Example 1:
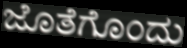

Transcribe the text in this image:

ಜೊತೆಗೊಂದು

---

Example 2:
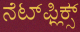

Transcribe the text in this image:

ನೆಟ್‌ಫ್ಲಿಕ್ಸ್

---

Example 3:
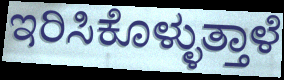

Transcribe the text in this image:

ಇರಿಸಿಕೊಳ್ಳುತ್ತಾಳೆ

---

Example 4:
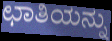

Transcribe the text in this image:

ಛಾತಿಯನ್ನು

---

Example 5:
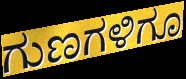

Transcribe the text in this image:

ಗುಣಗಳಿಗೂ